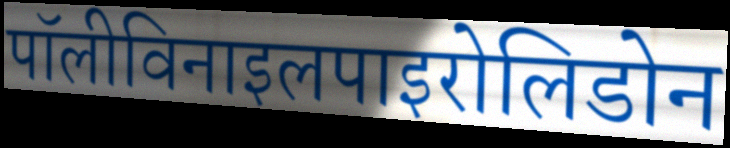
पॉलीविनाइलपाइरोलिडोन